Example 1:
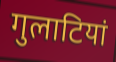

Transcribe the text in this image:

गुलाटियां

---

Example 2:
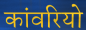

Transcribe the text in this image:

कांवरियो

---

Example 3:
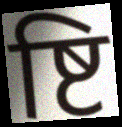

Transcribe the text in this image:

ष्टि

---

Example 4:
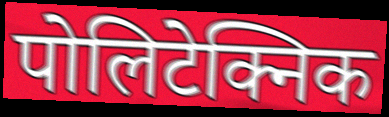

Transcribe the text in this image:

पोलिटेक्निक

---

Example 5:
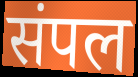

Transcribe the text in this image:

संपल